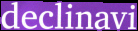
declinavi